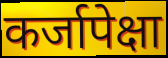
कर्जापेक्षा